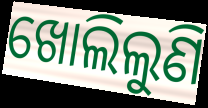
ଖୋଲିଲୁଣି